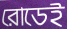
রোডেই